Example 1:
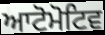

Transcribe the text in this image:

ਆਟੋਮੋਟਿਵ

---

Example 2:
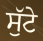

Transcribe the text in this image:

ਸੁੱਟੇ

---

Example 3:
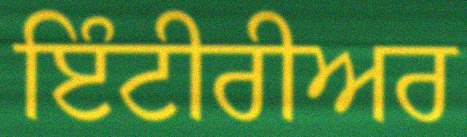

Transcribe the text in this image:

ਇੰਟੀਰੀਅਰ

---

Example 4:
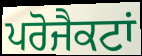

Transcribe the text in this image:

ਪਰੋਜੈਕਟਾਂ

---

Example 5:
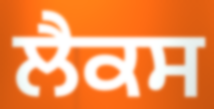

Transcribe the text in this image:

ਲੈਕਸ